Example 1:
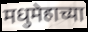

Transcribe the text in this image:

मधुमेहाच्या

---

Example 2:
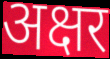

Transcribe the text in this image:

अक्षर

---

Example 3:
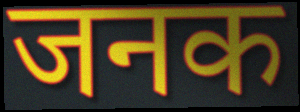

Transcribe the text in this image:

जनक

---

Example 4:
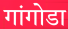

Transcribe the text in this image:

गांगोडा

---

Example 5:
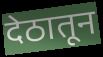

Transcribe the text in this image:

देठातून